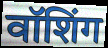
वॉशिंग